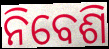
ନିବେଶି